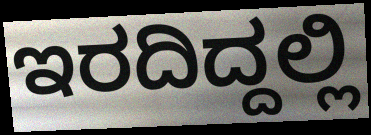
ಇರದಿದ್ದಲ್ಲಿ